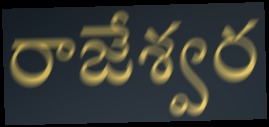
రాజేశ్వర